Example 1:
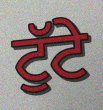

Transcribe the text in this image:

ਟੁੱਟੇ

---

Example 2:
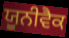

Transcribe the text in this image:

ਯੂਨੀਵੈਕ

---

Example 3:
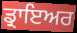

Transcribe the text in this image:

ਡ੍ਰਾਇਅਰ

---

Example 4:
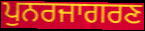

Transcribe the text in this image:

ਪੁਨਰਜਾਗਰਣ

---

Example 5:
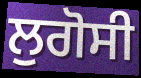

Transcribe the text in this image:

ਲੁਗੋਸੀ